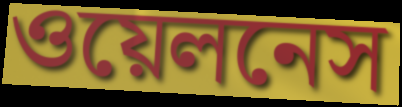
ওয়েলনেস